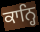
ਕਾਨ੍ਹਿ